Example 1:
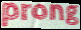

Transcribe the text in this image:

prong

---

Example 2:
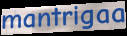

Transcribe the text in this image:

mantrigaa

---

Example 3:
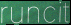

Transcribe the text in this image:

runcit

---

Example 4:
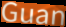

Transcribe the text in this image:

Guan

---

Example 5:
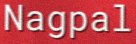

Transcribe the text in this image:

Nagpal